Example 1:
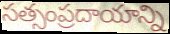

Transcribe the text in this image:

సత్సంప్రదాయాన్ని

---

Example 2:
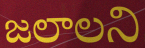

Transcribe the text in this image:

జలాలని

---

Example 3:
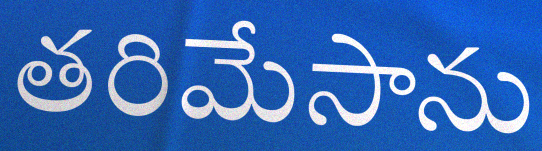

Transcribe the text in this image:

తరిమేసాను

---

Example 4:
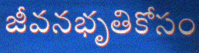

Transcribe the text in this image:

జీవనభృతికోసం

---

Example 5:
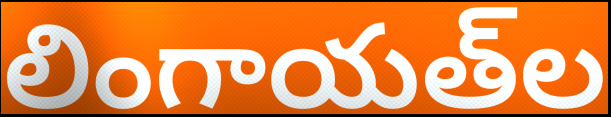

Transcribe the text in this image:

లింగాయత్‌ల